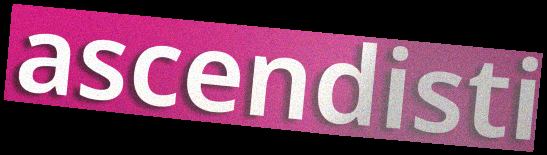
ascendisti